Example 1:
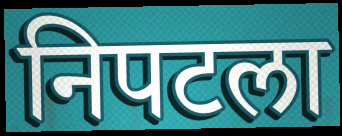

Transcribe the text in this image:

निपटला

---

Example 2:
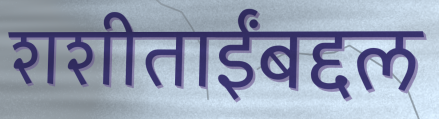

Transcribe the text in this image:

शशीताईंबद्दल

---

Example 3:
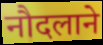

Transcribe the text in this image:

नौदलाने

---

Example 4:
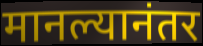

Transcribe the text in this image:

मानल्यानंतर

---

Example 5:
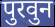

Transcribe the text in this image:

पुरवुन